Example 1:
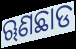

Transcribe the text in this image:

ୠଣଛାଡ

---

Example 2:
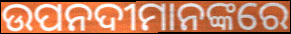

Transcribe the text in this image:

ଉପନଦୀମାନଙ୍କରେ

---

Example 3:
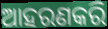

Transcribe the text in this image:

ଆହରଣକରି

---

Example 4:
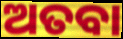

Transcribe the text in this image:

ଅତବା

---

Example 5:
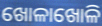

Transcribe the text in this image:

ଖୋଳାଖୋଳି